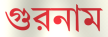
গুরনাম